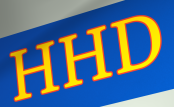
HHD